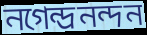
নগেন্দ্রনন্দন